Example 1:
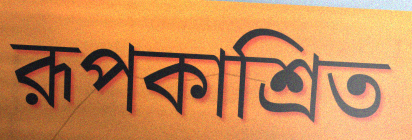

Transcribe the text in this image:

রূপকাশ্রিত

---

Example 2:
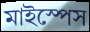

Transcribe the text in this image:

মাইস্পেস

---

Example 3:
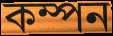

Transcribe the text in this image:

কম্পন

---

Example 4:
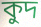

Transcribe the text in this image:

কুদ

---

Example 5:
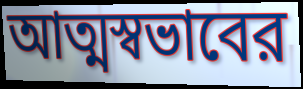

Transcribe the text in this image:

আত্মস্বভাবের